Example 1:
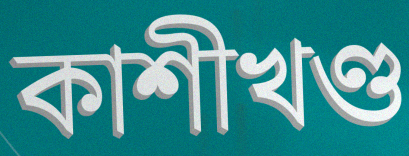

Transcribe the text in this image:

কাশীখণ্ড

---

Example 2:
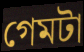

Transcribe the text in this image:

গেমটা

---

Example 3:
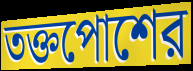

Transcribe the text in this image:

তক্তপোশের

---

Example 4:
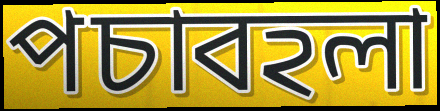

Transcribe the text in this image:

পচাবহলা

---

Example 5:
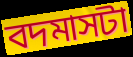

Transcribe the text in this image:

বদমাসটা